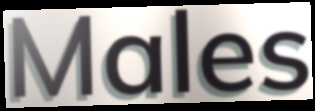
Males